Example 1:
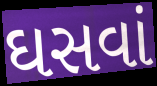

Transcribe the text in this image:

ઘસવાં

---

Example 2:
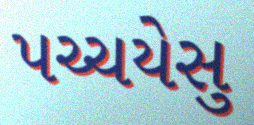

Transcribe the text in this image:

પચ્ચયેસુ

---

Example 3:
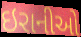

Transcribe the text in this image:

ઇરાનીઓ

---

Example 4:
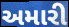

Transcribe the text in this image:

અમારી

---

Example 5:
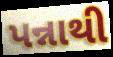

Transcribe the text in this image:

પન્નાથી